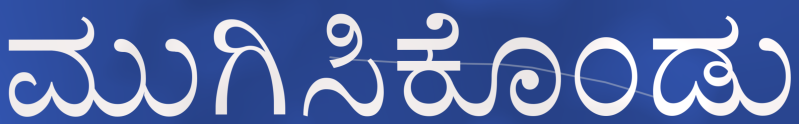
ಮುಗಿಸಿಕೊಂಡು